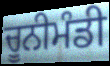
ਚੂਨੀਮੰਡੀ